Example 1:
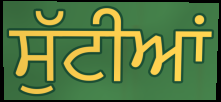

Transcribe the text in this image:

ਸੁੱਟੀਆਂ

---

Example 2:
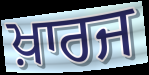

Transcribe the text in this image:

ਖ਼ਾਰਜ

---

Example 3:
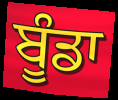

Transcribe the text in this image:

ਬੂੰਡਾ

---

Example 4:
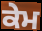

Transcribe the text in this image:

ਕੇਮ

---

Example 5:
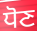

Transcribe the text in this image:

ਧੋਣ